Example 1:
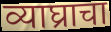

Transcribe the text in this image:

व्याघ्राचा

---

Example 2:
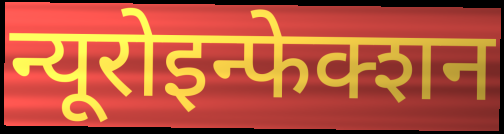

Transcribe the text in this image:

न्यूरोइन्फेक्शन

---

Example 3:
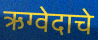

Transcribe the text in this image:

ऋग्वेदाचे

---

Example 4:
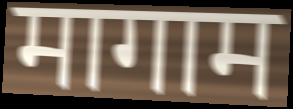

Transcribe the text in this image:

मागाम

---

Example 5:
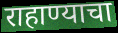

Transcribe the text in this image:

राहाण्याचा